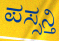
ಪಸ್ಸನ್ತಿ